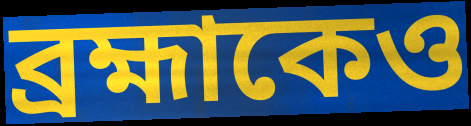
ব্রহ্মাকেও